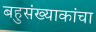
बहुसंख्याकांचा